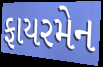
ફાયરમેન